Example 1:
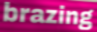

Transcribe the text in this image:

brazing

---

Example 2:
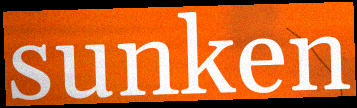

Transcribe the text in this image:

sunken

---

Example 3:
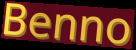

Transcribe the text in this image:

Benno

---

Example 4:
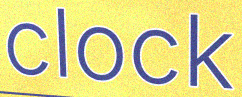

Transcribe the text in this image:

clock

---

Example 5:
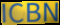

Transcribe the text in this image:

ICBN